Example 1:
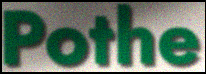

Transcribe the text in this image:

Pothe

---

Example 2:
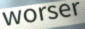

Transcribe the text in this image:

worser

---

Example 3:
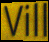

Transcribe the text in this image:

Vill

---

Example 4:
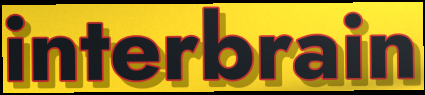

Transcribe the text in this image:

interbrain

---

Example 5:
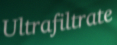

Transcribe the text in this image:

Ultrafiltrate